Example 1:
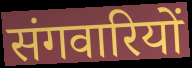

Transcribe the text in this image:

संगवारियों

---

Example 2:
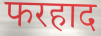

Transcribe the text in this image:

फरहाद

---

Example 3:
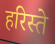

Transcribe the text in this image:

हरिस्ते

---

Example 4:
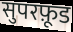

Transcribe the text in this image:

सुपरफ़ूड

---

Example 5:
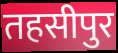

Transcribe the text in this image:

तहसीपुर